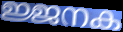
ജ്ജനക